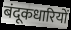
बंदूकधारियों